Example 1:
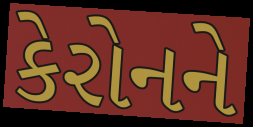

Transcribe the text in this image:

કેરોનને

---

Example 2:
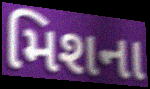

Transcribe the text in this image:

મિશના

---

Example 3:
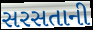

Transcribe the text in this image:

સરસતાની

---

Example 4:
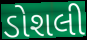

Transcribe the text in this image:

ડોશલી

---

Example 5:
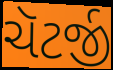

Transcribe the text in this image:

ચૅટર્જી